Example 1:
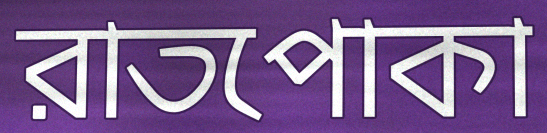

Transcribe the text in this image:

রাতপোকা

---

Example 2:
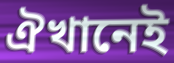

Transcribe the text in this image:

ঐখানেই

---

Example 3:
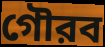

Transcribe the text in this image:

গৌরব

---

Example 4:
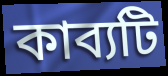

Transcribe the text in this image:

কাব্যটি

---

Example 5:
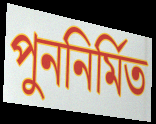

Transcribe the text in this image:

পুননির্মিত